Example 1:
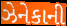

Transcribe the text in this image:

ઝેનેકાની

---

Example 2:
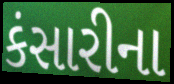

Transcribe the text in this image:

કંસારીના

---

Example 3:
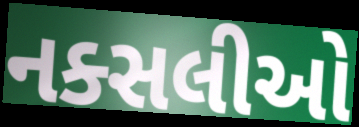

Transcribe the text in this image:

નક્સલીઓ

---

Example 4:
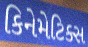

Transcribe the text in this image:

કિનેમેટિક્સ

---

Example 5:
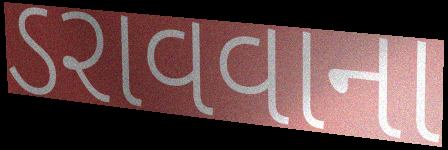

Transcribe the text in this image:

ડરાવવાના